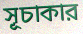
সূচাকার